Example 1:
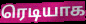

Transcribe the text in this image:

ரெடியாக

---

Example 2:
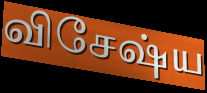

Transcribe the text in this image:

விசேஷ்ய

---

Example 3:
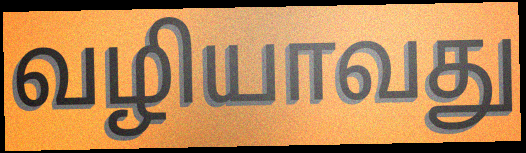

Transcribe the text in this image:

வழியாவது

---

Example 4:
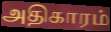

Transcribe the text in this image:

அதிகாரம்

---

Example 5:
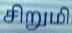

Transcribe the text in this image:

சிறுமி